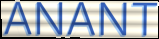
ANANT